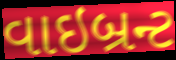
વાઇબ્રન્ટ